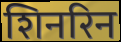
शिनरिन